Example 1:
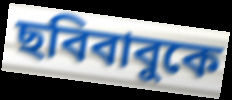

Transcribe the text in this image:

ছবিবাবুকে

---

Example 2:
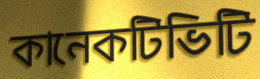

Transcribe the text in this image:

কানেকটিভিটি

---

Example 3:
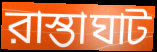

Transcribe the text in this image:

রাস্তাঘাট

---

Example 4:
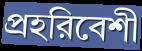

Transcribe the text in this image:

প্রহরিবেশী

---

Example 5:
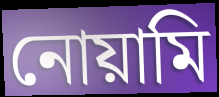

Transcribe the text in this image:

নোয়ামি